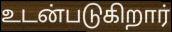
உடன்படுகிறார்